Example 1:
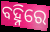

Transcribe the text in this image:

ବହ୍ନିରେ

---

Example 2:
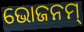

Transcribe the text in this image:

ଭୋଜନମ୍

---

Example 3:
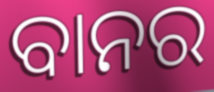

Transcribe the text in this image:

ବାନର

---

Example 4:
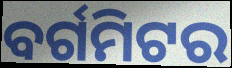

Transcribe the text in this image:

ବର୍ଗମିଟର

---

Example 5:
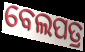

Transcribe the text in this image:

ବେଲପତ୍ର